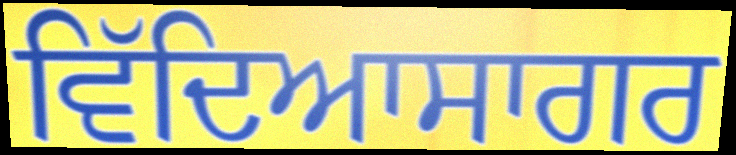
ਵਿੱਦਿਆਸਾਗਰ